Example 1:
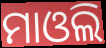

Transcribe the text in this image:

ମାଓଲି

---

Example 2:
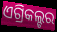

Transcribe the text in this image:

ଏଗ୍ରିକଲ୍ଚର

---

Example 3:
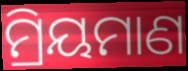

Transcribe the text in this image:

ମ୍ରିୟମାଣ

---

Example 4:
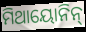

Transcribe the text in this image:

ମିଥାୟୋନିନ୍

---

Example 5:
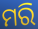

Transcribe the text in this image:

ମରି